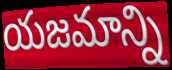
యజమాన్ని